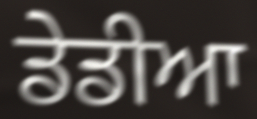
ਡੇਡੀਆ